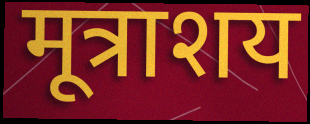
मूत्राशय